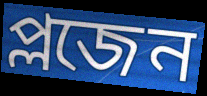
প্লজেন